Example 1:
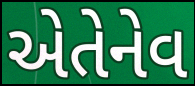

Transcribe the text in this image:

એતેનેવ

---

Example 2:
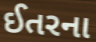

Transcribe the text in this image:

ઈતરના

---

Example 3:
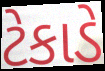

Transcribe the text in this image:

ટેકાડે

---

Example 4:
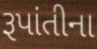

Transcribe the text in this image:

રૂપાંતીના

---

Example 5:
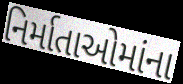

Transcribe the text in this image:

નિર્માતાઓમાંના